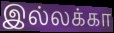
இல்லக்கா